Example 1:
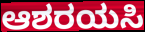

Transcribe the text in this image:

ಆಶರಯಸಿ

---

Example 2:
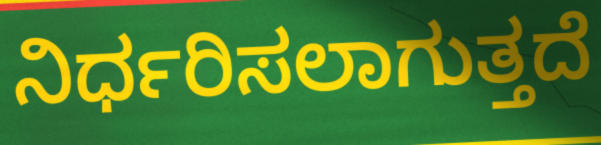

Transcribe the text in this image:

ನಿರ್ಧರಿಸಲಾಗುತ್ತದೆ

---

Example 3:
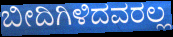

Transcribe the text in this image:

ಬೀದಿಗಿಳಿದವರಲ್ಲ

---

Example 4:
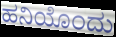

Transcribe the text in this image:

ಹನಿಯೊಂದು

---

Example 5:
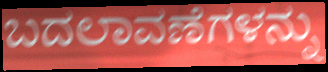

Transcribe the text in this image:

ಬದಲಾವಣೆಗಳನ್ನು